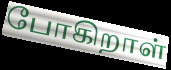
போகிறாள்